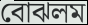
বোঝলম